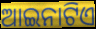
ଆଇନାଟିଏ